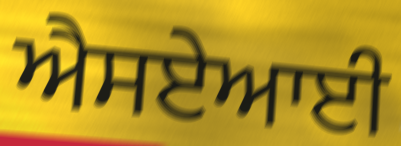
ਐਸਏਆਈ